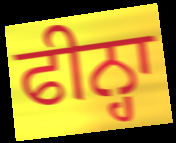
ਫੀਨ੍ਹਾ